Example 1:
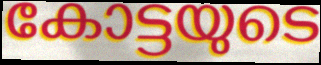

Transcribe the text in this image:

കോട്ടയുടെ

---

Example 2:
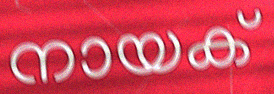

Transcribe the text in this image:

നായക്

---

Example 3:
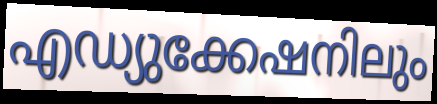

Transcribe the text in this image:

എഡ്യുക്കേഷനിലും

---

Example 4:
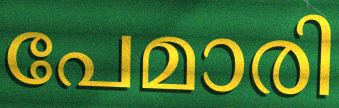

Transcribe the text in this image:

പേമാരി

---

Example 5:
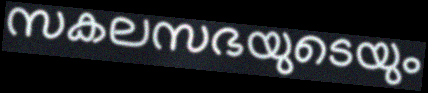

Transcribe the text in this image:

സകലസഭയുടെയും